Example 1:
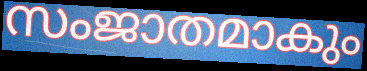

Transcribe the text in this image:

സംജാതമാകും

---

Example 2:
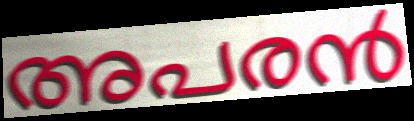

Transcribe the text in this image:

അപരൻ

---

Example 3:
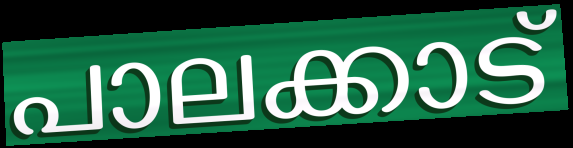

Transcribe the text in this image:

പാലക്കാട്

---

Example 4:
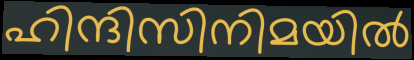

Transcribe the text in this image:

ഹിന്ദിസിനിമയിൽ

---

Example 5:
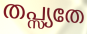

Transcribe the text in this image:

തപ്സ്യതേ